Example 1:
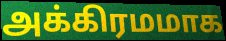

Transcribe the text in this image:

அக்கிரமமாக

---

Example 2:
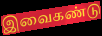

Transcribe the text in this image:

இவைகண்டு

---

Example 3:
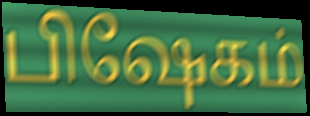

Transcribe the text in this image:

பிஷேகம்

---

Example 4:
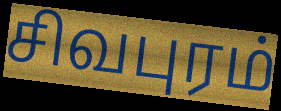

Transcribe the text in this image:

சிவபுரம்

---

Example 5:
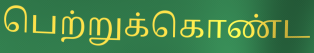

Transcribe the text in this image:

பெற்றுக்கொண்ட